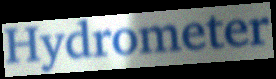
Hydrometer